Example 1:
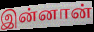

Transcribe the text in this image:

இன்னான்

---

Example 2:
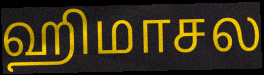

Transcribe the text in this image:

ஹிமாசல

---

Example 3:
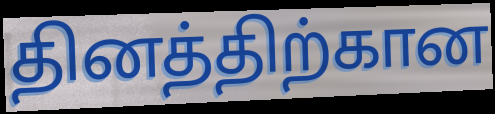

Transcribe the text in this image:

தினத்திற்கான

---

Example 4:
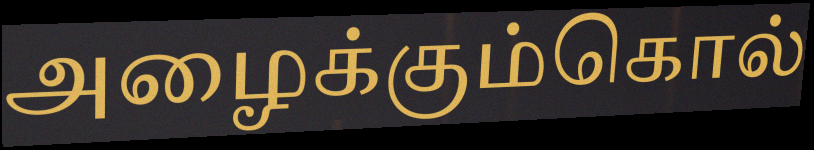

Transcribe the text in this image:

அழைக்கும்கொல்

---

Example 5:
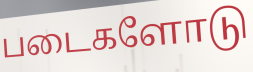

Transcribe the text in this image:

படைகளோடு